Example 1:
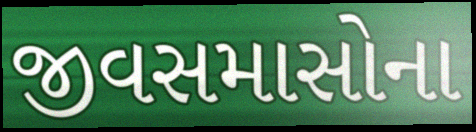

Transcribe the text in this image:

જીવસમાસોના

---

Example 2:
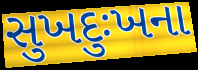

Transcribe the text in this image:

સુખદુઃખના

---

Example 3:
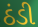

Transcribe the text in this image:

ઠંડી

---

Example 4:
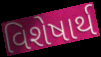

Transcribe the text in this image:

વિશેષાર્થ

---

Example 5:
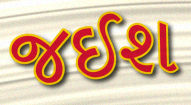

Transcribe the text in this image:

જઈશ